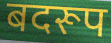
बदरूप